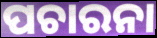
ପଚାରନା